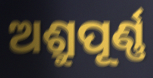
ଅଶ୍ରୁପୂର୍ଣ୍ଣ